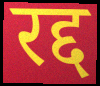
रद्द